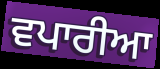
ਵਪਾਰੀਆ